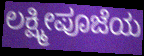
ಲಕ್ಷ್ಮೀಪೂಜೆಯ